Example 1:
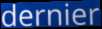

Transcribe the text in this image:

dernier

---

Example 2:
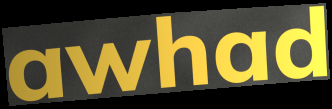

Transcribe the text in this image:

awhad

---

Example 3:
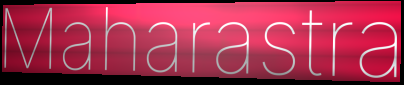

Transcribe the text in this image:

Maharastra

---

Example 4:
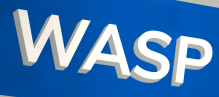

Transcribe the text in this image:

WASP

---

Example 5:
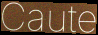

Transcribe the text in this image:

Caute